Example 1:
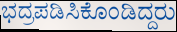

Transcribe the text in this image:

ಭದ್ರಪಡಿಸಿಕೊಂಡಿದ್ದರು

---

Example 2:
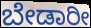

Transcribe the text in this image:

ಬೇಡಾರೀ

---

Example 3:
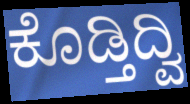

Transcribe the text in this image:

ಕೊಡ್ತಿದ್ವಿ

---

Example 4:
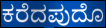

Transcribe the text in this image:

ಕರೆದಪುದೊ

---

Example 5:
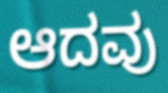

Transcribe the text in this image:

ಆದವು